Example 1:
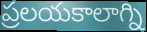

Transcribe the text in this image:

ప్రలయకాలాగ్ని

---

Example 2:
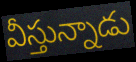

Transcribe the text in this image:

వీస్తున్నాడు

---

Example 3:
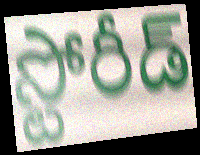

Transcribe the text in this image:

స్టోరీడ్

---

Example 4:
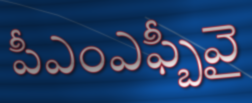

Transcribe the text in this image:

పీఎంఎఫ్బీవై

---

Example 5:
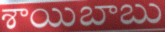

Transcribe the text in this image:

శాయిబాబు